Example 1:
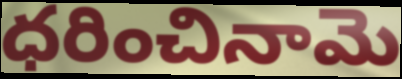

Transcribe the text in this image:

ధరించినామె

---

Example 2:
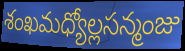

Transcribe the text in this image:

శంఖమధ్యోల్లసన్మంజు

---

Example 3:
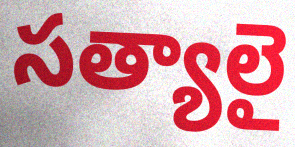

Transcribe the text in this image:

సత్యాలై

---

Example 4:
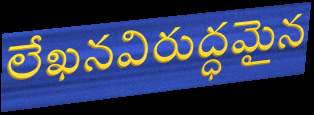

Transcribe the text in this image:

లేఖనవిరుద్ధమైన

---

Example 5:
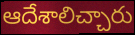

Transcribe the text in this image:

ఆదేశాలిచ్చారు